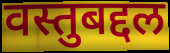
वस्तुबद्दल